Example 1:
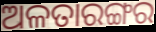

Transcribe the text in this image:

ଅଳତାରଙ୍ଗର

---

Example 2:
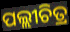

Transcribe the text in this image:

ପଲ୍ଲୀଚିତ୍ର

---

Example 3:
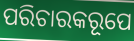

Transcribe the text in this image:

ପରିଚାରକରୂପେ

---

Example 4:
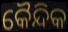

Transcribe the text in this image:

କୈନ୍ଦିକ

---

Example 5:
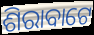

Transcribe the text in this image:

ଶିରାବାଟେ